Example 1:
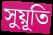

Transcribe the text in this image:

সুয়ূতি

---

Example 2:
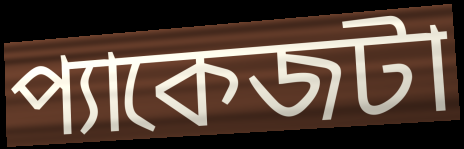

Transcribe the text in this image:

প্যাকেজটা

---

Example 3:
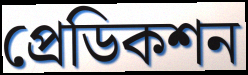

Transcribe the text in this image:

প্রেডিকশন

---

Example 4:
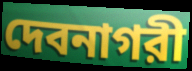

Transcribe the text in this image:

দেবনাগরী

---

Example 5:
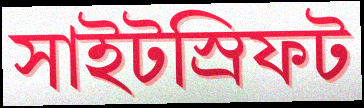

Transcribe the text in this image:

সাইটস্রিফট